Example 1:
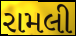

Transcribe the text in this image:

રામલી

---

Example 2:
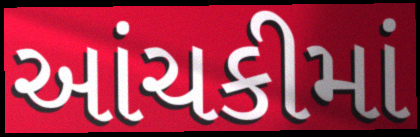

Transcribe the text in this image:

આંચકીમાં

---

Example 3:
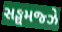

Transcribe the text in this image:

સઙ્ઘમજ્ઝે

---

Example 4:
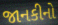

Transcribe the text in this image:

જાનકીનો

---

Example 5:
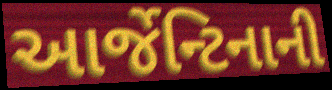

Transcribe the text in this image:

આર્જેન્ટિનાની